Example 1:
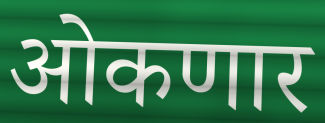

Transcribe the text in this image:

ओकणार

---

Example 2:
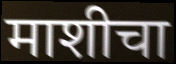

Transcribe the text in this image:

माशीचा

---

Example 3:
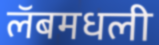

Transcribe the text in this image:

लॅबमधली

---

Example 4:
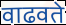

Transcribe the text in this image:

वाढवते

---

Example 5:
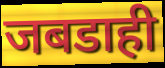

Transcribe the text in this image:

जबडाही